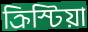
ক্রিস্টিয়া